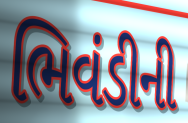
ભિવંડીની